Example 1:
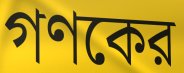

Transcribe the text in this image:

গণকের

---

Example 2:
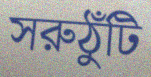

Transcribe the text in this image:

সরুঠুঁটি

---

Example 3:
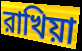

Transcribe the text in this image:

রাখিয়া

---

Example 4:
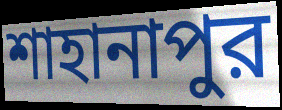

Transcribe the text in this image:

শাহানাপুর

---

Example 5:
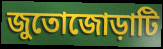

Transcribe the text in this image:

জুতোজোড়াটি